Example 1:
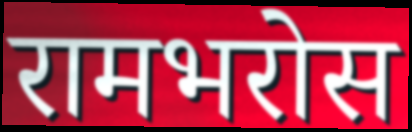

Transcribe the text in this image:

रामभरोस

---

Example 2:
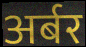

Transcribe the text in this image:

अर्बर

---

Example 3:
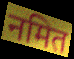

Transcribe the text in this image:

नमित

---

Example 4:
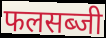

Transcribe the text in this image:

फलसब्जी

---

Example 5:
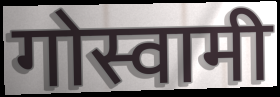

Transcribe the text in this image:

गोस्वामी